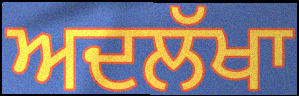
ਅਦਲੱਖਾ